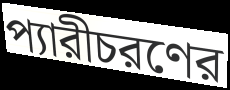
প্যারীচরণের